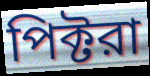
পিক্টরা